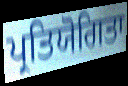
ਪ੍ਰਤਿਯੋਗਿਤਾ